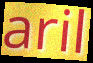
aril